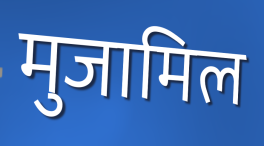
मुजामिल